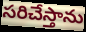
సరిచేస్తాను